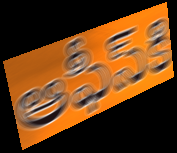
ఆఫీస్‌కి